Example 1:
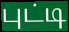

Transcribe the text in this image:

புட்டி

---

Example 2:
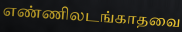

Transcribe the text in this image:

எண்ணிலடங்காதவை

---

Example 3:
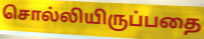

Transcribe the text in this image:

சொல்லியிருப்பதை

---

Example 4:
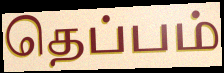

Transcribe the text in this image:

தெப்பம்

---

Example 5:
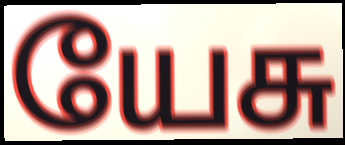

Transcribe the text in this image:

யேசு